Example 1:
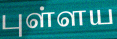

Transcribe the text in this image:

புள்ளய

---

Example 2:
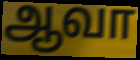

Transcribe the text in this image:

ஆவா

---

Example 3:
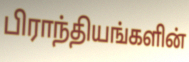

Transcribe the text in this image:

பிராந்தியங்களின்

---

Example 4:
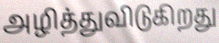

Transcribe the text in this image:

அழித்துவிடுகிறது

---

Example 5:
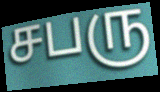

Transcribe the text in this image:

சபரு